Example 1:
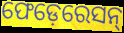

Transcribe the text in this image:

ଫେଡ଼େରେସନ୍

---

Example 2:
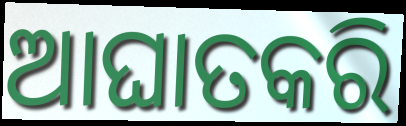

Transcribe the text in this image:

ଆଘାତକରି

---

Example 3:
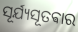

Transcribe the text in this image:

ସୂର୍ଯ୍ଯସୂତଵାର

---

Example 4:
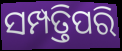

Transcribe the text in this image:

ସମ୍ପତ୍ତିପରି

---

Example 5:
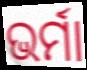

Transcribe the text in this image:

ଭର୍ମା